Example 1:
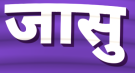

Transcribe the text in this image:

जासु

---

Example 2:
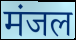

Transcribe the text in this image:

मंजल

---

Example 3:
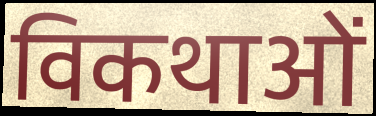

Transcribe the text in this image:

विकथाओं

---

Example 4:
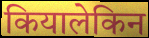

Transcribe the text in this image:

कियालेकिन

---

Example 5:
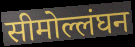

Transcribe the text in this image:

सीमोल्लंघन